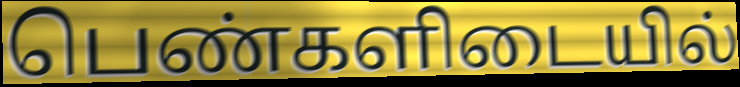
பெண்களிடையில்